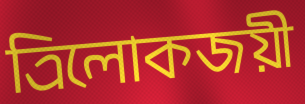
ত্রিলোকজয়ী